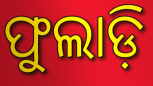
ଫୁଲାଡ଼ି